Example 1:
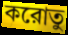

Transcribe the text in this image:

করোতু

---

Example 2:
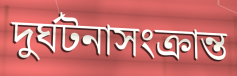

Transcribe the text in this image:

দুর্ঘটনাসংক্রান্ত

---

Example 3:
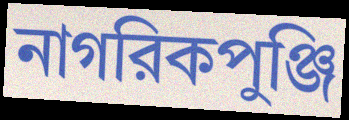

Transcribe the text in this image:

নাগরিকপুঞ্জি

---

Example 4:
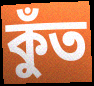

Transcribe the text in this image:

কুঁত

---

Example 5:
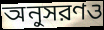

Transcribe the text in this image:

অনুসরণও